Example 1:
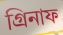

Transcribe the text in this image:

গ্রিনাফ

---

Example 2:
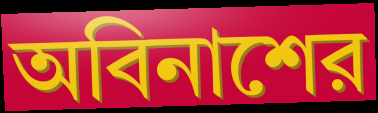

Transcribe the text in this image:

অবিনাশের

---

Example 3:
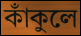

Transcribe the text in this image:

কাঁকুলে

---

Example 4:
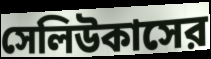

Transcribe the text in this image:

সেলিউকাসের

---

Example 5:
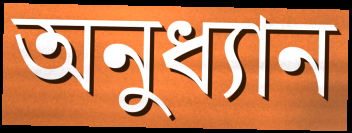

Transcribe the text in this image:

অনুধ্যান